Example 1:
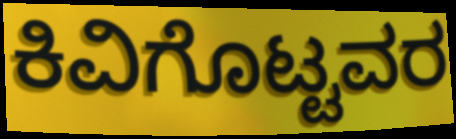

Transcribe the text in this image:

ಕಿವಿಗೊಟ್ಟವರ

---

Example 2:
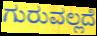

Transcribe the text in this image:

ಗುರುವಲ್ಲದೆ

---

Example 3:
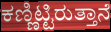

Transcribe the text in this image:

ಕಣ್ಣಿಟ್ಟಿರುತ್ತಾನೆ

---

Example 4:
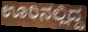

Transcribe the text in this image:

ಊರಿನಲ್ಲಿದ್ದ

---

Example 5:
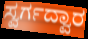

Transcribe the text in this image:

ಸ್ವರ್ಗದ್ವಾರ